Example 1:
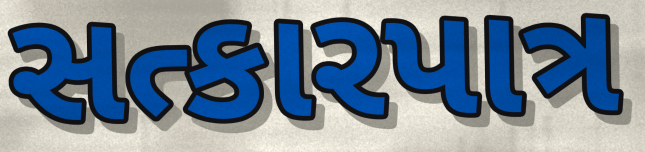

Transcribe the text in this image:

સત્કારપાત્ર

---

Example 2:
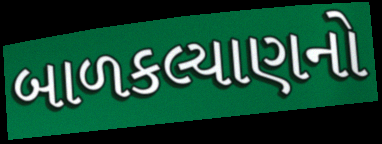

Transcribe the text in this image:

બાળકલ્યાણનો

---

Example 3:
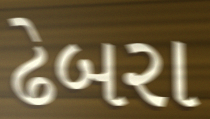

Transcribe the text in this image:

ઢેબરા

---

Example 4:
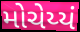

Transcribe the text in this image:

મોચેય્યં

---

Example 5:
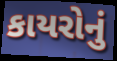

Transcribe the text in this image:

કાયરોનું